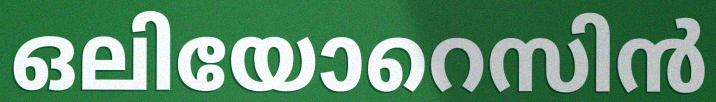
ഒലിയോറെസിൻ